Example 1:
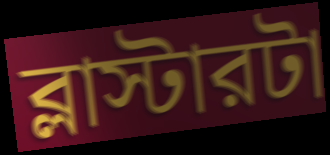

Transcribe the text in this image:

ব্লাস্টারটা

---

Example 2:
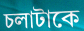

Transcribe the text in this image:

চলাটাকে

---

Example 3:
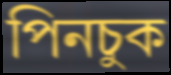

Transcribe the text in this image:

পিনচুক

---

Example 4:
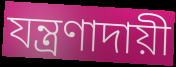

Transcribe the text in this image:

যন্ত্রণাদায়ী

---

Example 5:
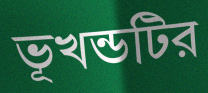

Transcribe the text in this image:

ভূখন্ডটির